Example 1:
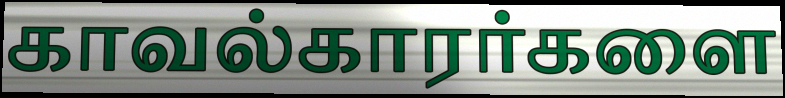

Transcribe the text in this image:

காவல்காரர்களை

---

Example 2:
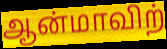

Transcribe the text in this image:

ஆன்மாவிற்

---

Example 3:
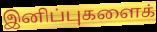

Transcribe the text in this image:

இனிப்புகளைக்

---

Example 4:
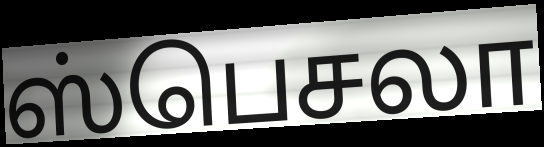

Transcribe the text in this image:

ஸ்பெசலா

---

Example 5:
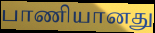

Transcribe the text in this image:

பாணியானது